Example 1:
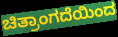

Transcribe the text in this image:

ಚಿತ್ರಾಂಗದೆಯಿಂದ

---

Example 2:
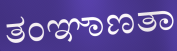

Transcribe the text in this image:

ತಂಞಾಣತಾ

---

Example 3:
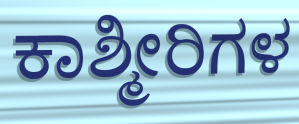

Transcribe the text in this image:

ಕಾಶ್ಮೀರಿಗಳ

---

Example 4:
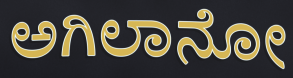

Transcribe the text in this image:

ಅಗಿಲಾನೋ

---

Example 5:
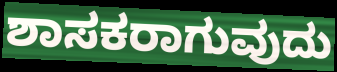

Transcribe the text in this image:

ಶಾಸಕರಾಗುವುದು